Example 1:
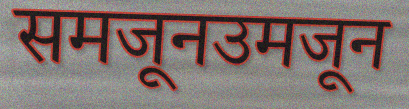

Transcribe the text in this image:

समजूनउमजून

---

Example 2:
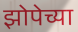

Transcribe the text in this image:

झोपेच्या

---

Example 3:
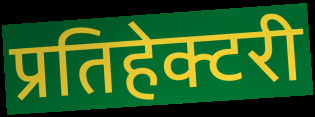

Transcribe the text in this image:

प्रतिहेक्टरी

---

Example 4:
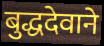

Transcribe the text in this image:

बुद्धदेवाने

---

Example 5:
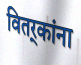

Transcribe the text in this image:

वितर्कांना